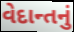
વેદાન્તનું